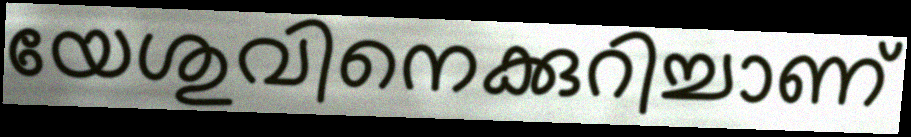
യേശുവിനെക്കുറിച്ചാണ്